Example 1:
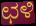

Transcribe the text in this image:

ಛಳಿ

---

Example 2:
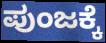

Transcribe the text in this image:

ಪುಂಜಕ್ಕೆ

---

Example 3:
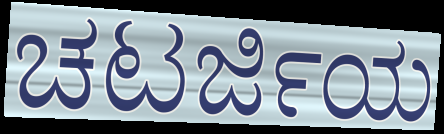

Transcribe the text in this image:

ಚಟರ್ಜಿಯ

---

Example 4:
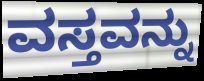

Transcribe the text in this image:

ವಸ್ತವನ್ನು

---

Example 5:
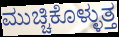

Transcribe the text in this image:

ಮುಚ್ಚಿಕೊಳ್ಳುತ್ತ